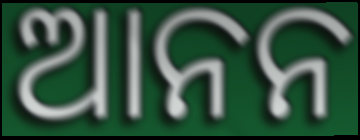
ଆନନ